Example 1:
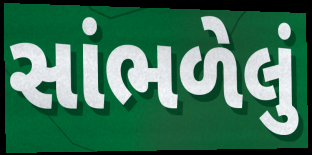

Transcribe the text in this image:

સાંભળેલું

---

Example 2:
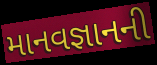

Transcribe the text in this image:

માનવજ્ઞાનની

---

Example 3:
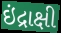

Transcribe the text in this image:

ઇંદ્રાક્ષી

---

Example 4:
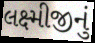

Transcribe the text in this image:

લક્ષ્મીજીનું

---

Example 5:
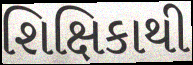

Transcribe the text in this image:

શિક્ષિકાથી